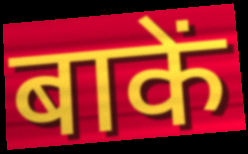
बाकें